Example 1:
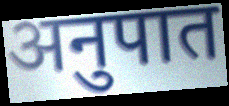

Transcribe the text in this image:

अनुपात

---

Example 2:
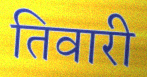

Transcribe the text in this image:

तिवारी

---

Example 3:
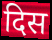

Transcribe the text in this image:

दिस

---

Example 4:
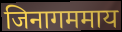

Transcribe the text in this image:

जिनागममाय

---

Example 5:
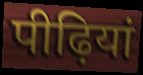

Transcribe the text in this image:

पीढ़ियां